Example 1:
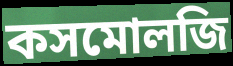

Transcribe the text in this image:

কসমোলজি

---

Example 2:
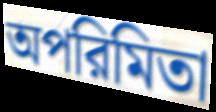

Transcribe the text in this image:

অপরিমিতা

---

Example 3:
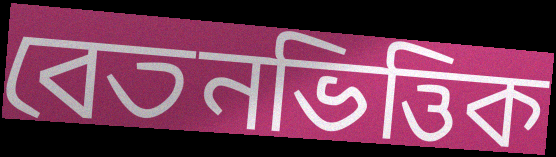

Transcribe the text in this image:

বেতনভিত্তিক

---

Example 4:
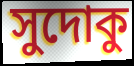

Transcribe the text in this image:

সুদোকু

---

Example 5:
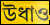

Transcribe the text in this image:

উধাও